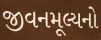
જીવનમૂલ્યનો